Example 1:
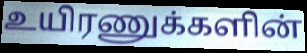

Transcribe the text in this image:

உயிரணுக்களின்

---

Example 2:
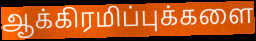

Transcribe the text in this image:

ஆக்கிரமிப்புக்களை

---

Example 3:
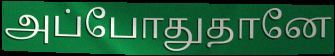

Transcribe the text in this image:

அப்போதுதானே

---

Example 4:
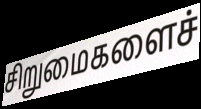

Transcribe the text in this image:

சிறுமைகளைச்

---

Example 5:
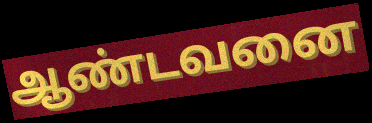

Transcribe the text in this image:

ஆண்டவனை